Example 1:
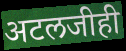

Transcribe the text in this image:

अटलजीही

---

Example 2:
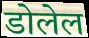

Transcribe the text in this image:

डोलेल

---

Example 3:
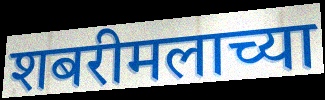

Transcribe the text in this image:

शबरीमलाच्या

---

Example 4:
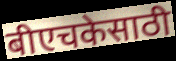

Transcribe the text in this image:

बीएचकेसाठी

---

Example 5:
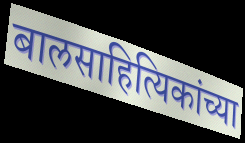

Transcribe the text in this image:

बालसाहित्यिकांच्या